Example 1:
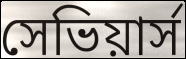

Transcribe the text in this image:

সেভিয়ার্স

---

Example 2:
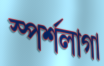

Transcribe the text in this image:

স্পর্শলাগা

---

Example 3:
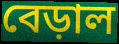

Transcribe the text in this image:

বেড়াল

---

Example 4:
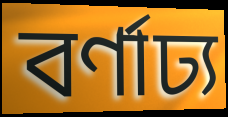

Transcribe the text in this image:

বর্ণাঢ্য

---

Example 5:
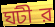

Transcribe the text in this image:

ঘটীর